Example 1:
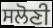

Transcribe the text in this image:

ਸਲੋਣੀ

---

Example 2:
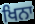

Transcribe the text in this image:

ਖਿਨਾ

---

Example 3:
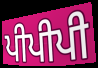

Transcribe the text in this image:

ਪੀਪੀਪੀ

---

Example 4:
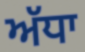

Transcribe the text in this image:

ਅੱਧਾ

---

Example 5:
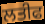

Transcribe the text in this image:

ਲਤੀਫ